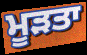
ਮੂੜਤਾ